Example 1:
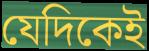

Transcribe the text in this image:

যেদিকেই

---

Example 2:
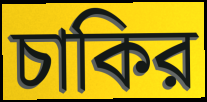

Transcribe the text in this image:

চাকির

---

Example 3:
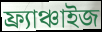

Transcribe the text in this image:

ফ্র্যাঞ্চাইজ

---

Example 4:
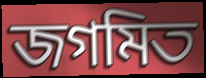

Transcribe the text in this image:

জগমিত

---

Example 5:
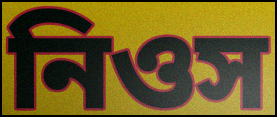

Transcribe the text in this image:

নিওস